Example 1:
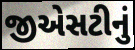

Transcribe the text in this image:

જીએસટીનું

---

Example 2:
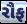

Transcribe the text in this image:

રૌફ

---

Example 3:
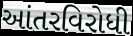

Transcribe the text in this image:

આંતરવિરોધી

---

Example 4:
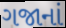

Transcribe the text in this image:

ગજાનાં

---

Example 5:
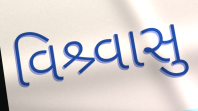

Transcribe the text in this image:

વિશ્ર્વાસુ